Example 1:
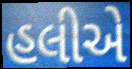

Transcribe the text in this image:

હલીએ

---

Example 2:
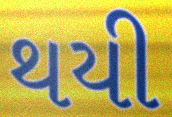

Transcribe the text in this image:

થયી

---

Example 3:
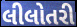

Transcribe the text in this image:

લીલોતરી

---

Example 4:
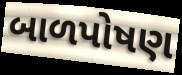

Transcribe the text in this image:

બાળપોષણ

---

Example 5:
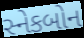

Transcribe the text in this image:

સ્નેકબોન